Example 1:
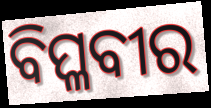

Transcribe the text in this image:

ବିପ୍ଳବୀର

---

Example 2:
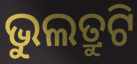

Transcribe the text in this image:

ଭୁଲତ୍ରୁଟି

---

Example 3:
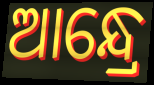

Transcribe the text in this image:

ଆନ୍ଧ୍ରେ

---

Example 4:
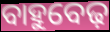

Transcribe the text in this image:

ବାହୁବେଢ଼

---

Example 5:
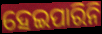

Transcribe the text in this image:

ହେଇପାରିନି